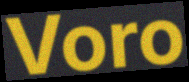
Voro